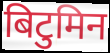
बिटुमिन